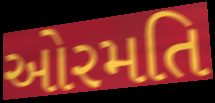
ઓરમતિ